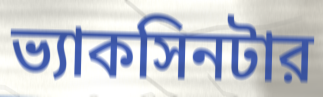
ভ্যাকসিনটার